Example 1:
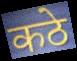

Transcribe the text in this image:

कठे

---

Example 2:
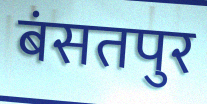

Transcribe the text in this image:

बंसतपुर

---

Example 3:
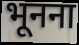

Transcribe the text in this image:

भूनना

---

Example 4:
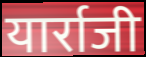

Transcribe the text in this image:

यार्राजी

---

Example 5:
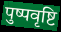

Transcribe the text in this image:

पुष्पवृष्टि